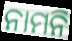
ନାମନି